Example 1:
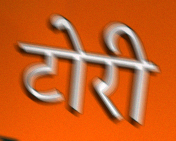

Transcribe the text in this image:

टोरी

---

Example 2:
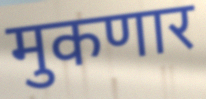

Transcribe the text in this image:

मुकणार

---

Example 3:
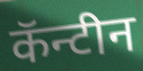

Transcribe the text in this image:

कॅन्टीन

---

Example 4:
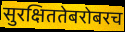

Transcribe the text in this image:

सुरक्षिततेबरोबरच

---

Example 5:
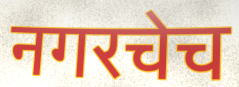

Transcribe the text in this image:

नगरचेच